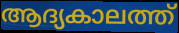
ആദ്യകാലത്ത്